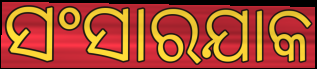
ସଂସାରଯାକ